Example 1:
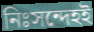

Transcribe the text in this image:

নিঃসন্দেহই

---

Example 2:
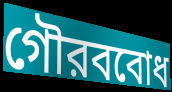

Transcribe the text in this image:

গৌরববোধ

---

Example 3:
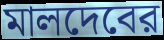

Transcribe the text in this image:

মালদেবের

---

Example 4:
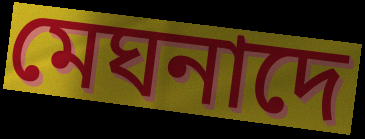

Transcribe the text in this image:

মেঘনাদে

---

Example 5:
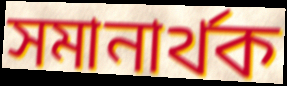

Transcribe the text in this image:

সমানার্থক